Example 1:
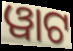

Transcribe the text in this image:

ୱାଟ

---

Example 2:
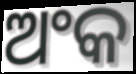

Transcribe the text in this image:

ଅଂକ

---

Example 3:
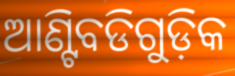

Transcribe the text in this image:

ଆଣ୍ଟିବଡିଗୁଡ଼ିକ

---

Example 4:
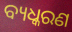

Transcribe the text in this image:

ବ୍ୟଧ୍କରଣ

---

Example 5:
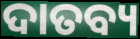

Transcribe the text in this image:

ଦାତବ୍ୟ